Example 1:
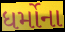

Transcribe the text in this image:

ધર્મોના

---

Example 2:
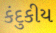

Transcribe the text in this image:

કંદુકીય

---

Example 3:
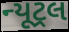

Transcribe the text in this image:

ન્યૂટ્રલ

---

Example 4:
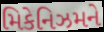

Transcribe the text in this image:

મિકેનિઝમને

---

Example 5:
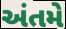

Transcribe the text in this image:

અંતમે